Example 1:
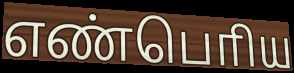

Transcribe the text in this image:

எண்பெரிய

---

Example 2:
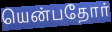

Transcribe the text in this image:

யென்பதோர்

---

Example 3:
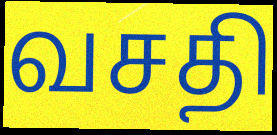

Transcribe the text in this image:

வசதி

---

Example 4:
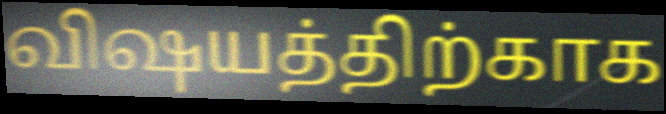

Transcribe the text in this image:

விஷயத்திற்காக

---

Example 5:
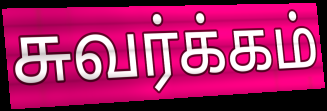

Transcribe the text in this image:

சுவர்க்கம்